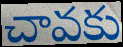
చావకు